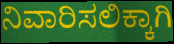
ನಿವಾರಿಸಲಿಕ್ಕಾಗಿ